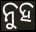
ନୁହ